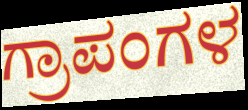
ಗ್ರಾಪಂಗಳ